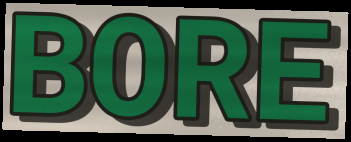
BORE